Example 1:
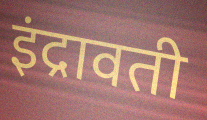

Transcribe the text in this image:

इंद्रावती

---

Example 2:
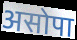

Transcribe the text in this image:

असोपा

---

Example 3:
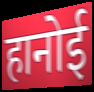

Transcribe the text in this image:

हानोई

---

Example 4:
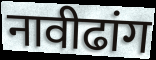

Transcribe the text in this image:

नावीढांग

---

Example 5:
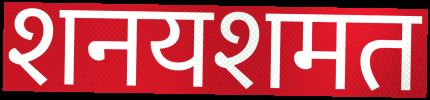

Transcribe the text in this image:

शनयशमत